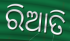
ରିଆତି